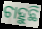
ଚାହୁଛି